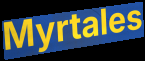
Myrtales